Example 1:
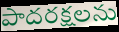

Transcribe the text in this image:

పాదరక్షలను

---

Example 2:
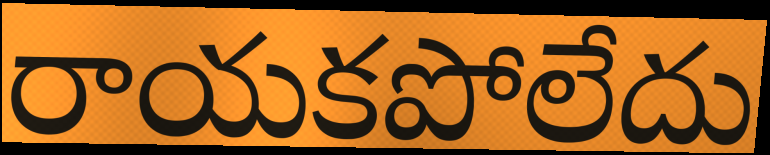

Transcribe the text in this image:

రాయకపోలేదు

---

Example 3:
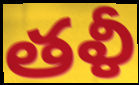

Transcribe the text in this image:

తళీ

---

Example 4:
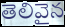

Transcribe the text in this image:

తెలివైన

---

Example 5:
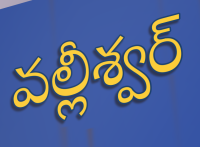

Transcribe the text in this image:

వల్లీశ్వర్